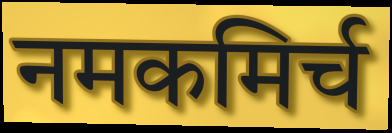
नमकमिर्च